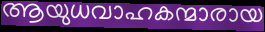
ആയുധവാഹകന്മാരായ